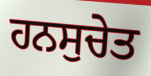
ਹਨਸੁਚੇਤ